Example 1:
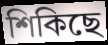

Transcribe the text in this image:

শিকিছে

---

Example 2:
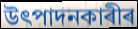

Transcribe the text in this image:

উৎপাদনকাৰীৰ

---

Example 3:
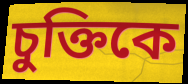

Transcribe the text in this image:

চুক্তিকে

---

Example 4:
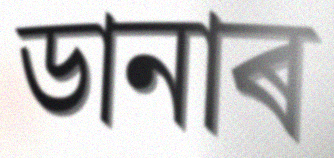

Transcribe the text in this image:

ডানাৰ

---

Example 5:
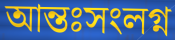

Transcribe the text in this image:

আন্তঃসংলগ্ন